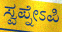
ಸ್ವಪ್ನೇಽಪಿ